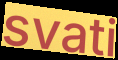
svati